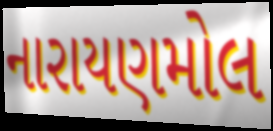
નારાયણમોલ